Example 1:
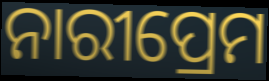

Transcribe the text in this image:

ନାରୀପ୍ରେମ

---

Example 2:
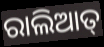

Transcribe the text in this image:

ରାଲିଆତ୍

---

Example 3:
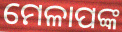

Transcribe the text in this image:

ମେଳାପଙ୍କ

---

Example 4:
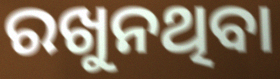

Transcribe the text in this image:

ରଖୁନଥିବା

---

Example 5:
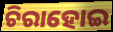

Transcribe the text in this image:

ଚିରାହୋଇ